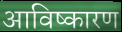
आविष्कारण